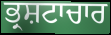
ਭ੍ਰਸ਼ਟਾਚਾਰ